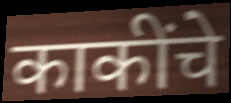
काकींचे